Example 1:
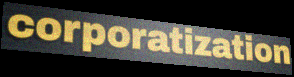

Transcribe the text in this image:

corporatization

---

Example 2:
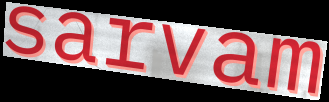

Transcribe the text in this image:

sarvam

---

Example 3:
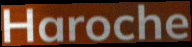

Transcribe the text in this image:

Haroche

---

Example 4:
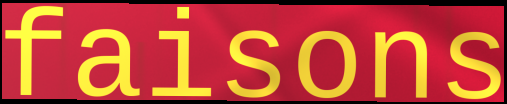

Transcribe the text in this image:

faisons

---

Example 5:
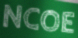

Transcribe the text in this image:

NCOE